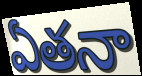
ఏతనా